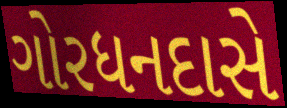
ગોરધનદાસે